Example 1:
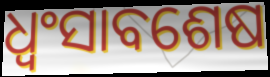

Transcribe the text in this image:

ଧ୍ଵଂସାବଶେଷ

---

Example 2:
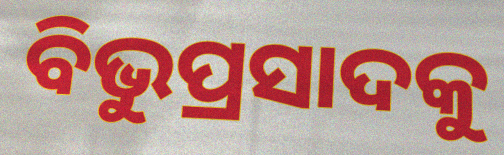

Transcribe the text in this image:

ବିଭୁପ୍ରସାଦକୁ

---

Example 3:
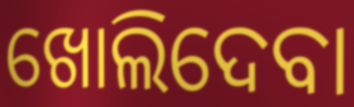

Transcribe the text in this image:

ଖୋଲିଦେବା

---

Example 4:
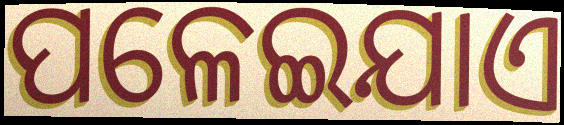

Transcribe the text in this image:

ପଳେଇଯାଏ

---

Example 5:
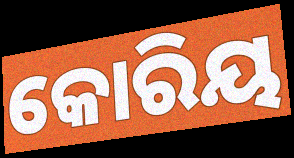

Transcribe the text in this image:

କୋରିୟ